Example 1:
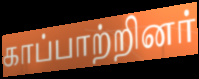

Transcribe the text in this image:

காப்பாற்றினர்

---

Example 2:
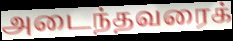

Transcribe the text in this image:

அடைந்தவரைக்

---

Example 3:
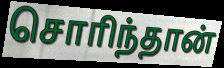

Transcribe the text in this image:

சொரிந்தான்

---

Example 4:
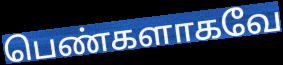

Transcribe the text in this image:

பெண்களாகவே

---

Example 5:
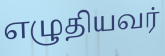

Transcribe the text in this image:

எழுதியவர்